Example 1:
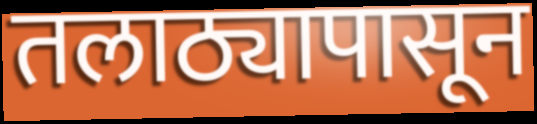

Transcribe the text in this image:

तलाठ्यापासून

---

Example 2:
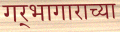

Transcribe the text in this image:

गर्भागाराच्या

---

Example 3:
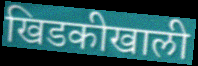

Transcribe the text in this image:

खिडकीखाली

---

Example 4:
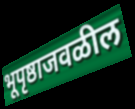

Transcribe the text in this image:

भूपृष्ठाजवळील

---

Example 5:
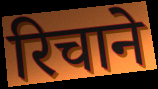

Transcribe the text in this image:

रिचाने